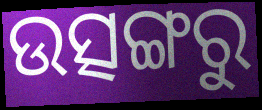
ଉତ୍ସଙ୍ଗରୁ